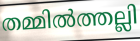
തമ്മിൽത്തല്ലി